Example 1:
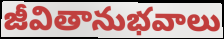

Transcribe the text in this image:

జీవితానుభవాలు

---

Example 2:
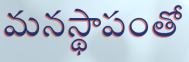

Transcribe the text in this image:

మనస్థాపంతో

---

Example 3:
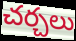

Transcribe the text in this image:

చర్చలు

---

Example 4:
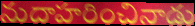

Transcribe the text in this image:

నుదాహరించినాడు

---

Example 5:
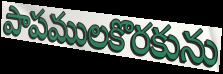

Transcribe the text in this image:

పాపములకొరకును